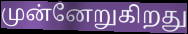
முன்னேறுகிறது